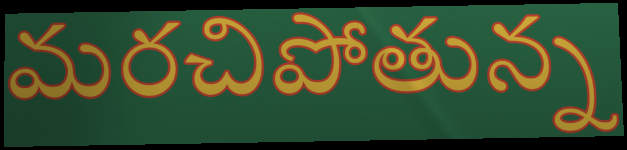
మరచిపోతున్న